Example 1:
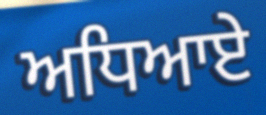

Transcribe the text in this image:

ਅਧਿਆਏ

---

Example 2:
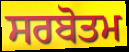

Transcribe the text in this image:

ਸਰਬੋਤਮ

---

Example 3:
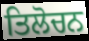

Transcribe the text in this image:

ਤਿਲੋਚਨ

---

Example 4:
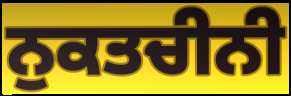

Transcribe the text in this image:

ਨੁਕਤਚੀਨੀ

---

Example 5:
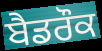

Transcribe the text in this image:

ਬੈਡਰੌਕ